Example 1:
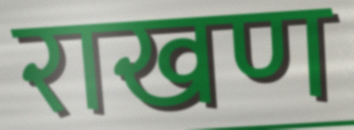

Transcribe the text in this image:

राखण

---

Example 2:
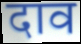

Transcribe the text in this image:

दाव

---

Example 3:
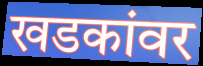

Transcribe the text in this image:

खडकांवर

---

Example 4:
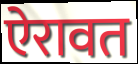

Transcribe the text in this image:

ऐरावत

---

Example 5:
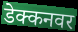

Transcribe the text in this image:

डेक्कनवर